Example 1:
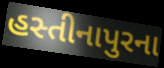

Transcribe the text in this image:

હસ્તીનાપુરના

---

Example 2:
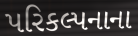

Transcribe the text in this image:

પરિકલ્પનાના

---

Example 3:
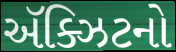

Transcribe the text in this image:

ઍક્ઝિટનો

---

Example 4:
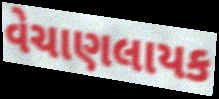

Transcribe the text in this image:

વેચાણલાયક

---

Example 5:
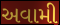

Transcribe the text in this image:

અવામી